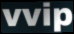
vvip